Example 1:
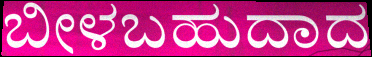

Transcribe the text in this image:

ಬೀಳಬಹುದಾದ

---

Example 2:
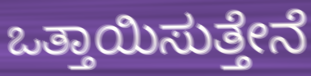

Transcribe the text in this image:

ಒತ್ತಾಯಿಸುತ್ತೇನೆ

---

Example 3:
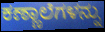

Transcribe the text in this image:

ಕಣ್ಣಾಲೆಗಳನ್ನು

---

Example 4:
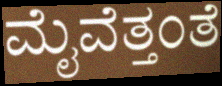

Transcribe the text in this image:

ಮೈವೆತ್ತಂತೆ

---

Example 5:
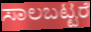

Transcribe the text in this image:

ಸಾಲಬಟ್ಟರೆ